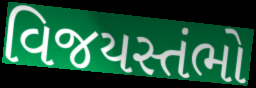
વિજયસ્તંભો